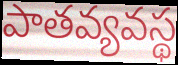
పాతవ్యవస్థ